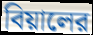
বিয়ালের